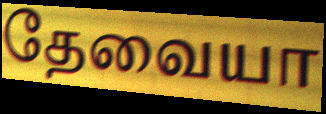
தேவையா